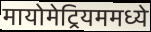
मायोमेट्रियममध्ये